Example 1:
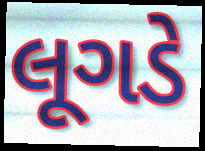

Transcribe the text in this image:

લૂગડે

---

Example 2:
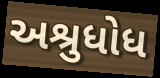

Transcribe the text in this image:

અશ્રુધોધ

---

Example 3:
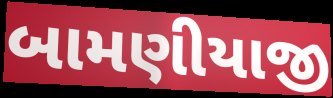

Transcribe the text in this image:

બામણીયાજી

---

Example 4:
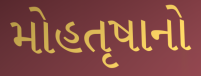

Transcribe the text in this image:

મોહતૃષાનો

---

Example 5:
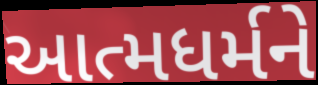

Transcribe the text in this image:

આત્મધર્મને